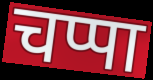
चप्पा